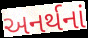
અનર્થનાં